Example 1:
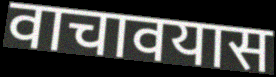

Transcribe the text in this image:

वाचावयास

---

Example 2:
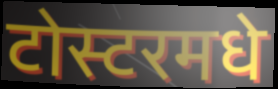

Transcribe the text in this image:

टोस्टरमधे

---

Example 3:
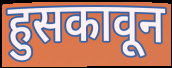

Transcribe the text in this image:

हुसकावून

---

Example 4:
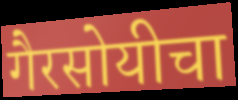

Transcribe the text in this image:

गैरसोयीचा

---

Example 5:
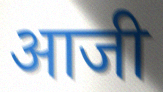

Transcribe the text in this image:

आजी